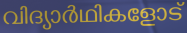
വിദ്യാർഥികളോട്